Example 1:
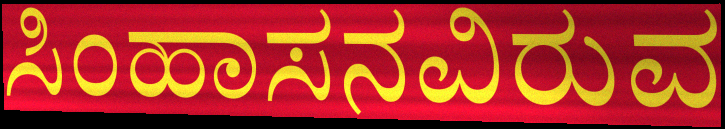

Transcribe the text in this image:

ಸಿಂಹಾಸನವಿರುವ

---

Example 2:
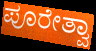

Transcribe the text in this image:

ಪೂರೇತ್ವಾ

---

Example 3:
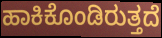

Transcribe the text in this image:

ಹಾಕಿಕೊಂಡಿರುತ್ತದೆ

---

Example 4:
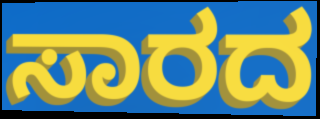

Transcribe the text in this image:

ಸಾರದ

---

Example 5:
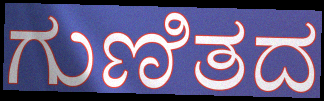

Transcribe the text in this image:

ಗುಣಿತದ